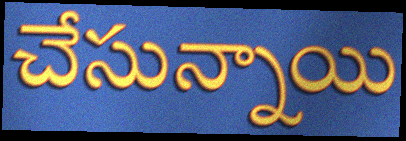
చేసున్నాయి